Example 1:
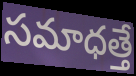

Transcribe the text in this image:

సమాధత్తే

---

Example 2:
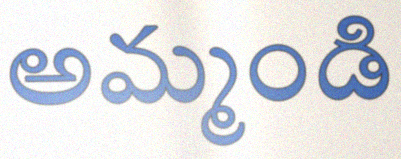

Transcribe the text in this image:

అమ్మండి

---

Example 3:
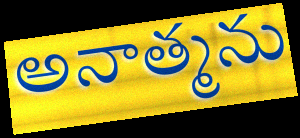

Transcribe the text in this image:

అనాత్మను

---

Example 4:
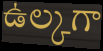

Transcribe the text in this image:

ఉల్కగా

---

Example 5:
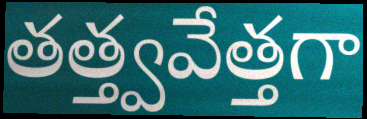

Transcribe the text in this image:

తత్త్వవేత్తగా